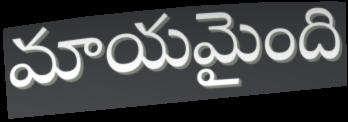
మాయమైంది